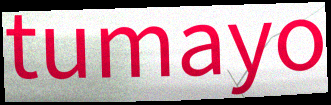
tumayo